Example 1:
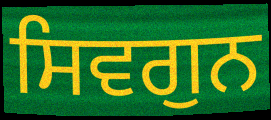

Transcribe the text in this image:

ਸਿਵਗੁਨ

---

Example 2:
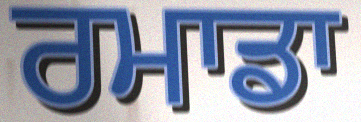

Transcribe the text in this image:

ਰਮਾਡਾ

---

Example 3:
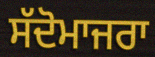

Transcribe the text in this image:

ਸੱਦੋਮਾਜਰਾ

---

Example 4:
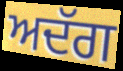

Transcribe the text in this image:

ਅਦੱਗ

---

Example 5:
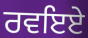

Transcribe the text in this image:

ਰਵਇਏ